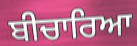
ਬੀਚਾਰਿਆ